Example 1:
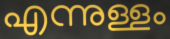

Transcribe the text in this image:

എന്നുള്ളം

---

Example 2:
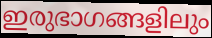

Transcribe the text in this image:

ഇരുഭാഗങ്ങളിലും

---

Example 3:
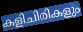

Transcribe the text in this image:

കളിചിരികളും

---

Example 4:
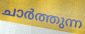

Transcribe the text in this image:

ചാർത്തുന്ന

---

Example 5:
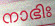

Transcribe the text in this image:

നാഭിഃ